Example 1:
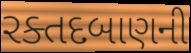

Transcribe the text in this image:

રક્તદબાણની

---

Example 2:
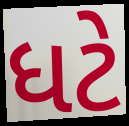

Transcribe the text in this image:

ધટે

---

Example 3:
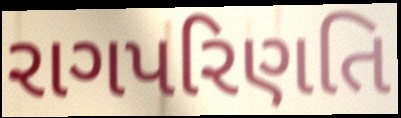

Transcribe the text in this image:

રાગપરિણતિ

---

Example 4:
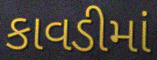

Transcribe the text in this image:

કાવડીમાં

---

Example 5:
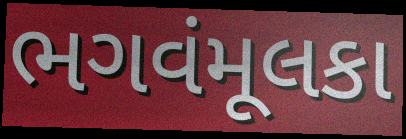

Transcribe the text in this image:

ભગવંમૂલકા